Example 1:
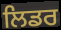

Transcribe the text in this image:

ਲਿਡਰ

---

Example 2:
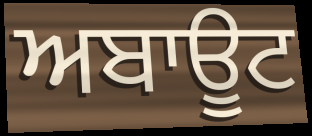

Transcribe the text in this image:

ਅਬਾਊਟ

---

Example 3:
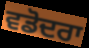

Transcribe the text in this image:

ਵਡੋਦਰਾ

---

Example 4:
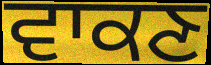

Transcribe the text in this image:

ਵਾਕਣ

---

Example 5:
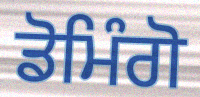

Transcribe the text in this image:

ਡੋਮਿੰਗੋ